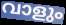
വാളും